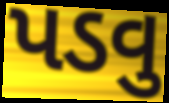
પડવુ